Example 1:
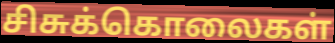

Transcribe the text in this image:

சிசுக்கொலைகள்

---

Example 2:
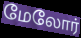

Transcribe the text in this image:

மேலோர்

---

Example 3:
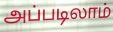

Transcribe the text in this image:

அப்படிலாம்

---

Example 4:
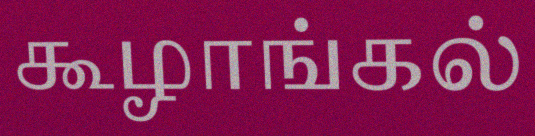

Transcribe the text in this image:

கூழாங்கல்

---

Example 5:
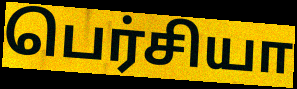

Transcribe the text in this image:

பெர்சியா